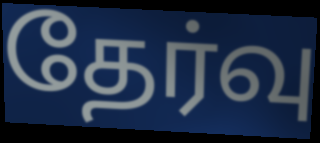
தேர்வு